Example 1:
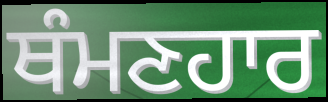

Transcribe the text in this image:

ਥੰਮਣਹਾਰ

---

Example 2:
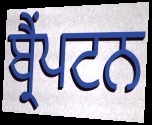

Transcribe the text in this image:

ਬ੍ਰੈਂਪਟਨ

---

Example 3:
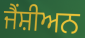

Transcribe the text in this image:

ਜੈਂਸ਼ੀਅਨ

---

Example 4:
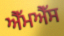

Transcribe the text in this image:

ਐੱਮਐੱਸ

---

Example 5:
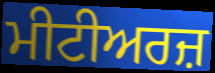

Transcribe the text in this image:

ਮੀਟੀਅਰਜ਼